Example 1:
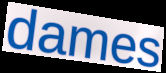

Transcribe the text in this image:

dames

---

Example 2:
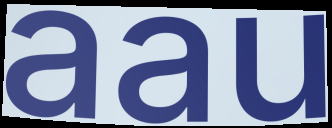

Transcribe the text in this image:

aau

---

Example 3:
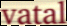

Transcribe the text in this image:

vatal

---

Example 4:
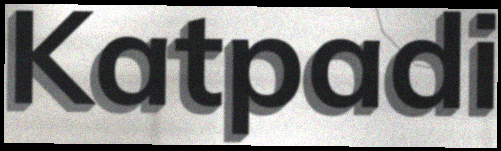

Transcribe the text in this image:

Katpadi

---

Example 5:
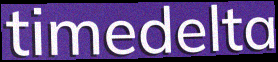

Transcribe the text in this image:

timedelta